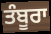
ਤੰਬੂਰਾ